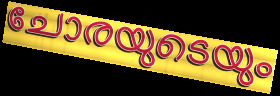
ചോരയുടെയും